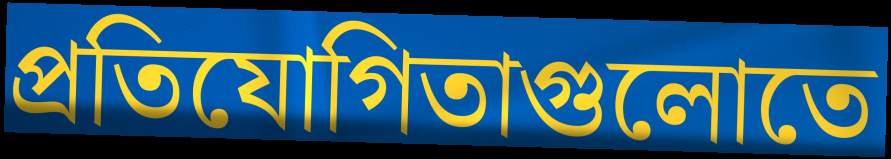
প্রতিযোগিতাগুলোতে